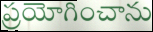
ప్రయోగించాను